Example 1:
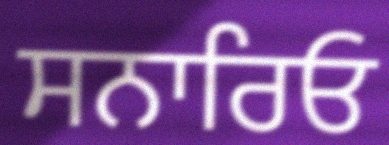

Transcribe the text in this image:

ਸਨਾਰਿਓ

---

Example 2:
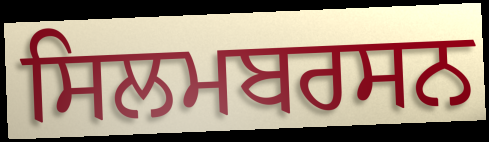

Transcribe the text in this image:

ਸਿਲਮਬਰਸਨ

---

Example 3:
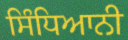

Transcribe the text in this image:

ਸਿੰਧਿਆਨੀ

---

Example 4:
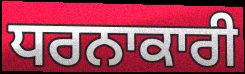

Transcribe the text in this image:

ਧਰਨਾਕਾਰੀ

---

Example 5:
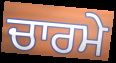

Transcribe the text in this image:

ਚਾਰਮੇ